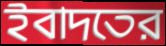
ইবাদতের